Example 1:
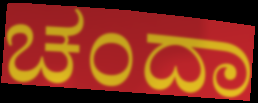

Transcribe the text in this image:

ಚಂದಾ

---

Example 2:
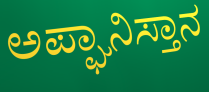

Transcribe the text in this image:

ಅಪ್ಘಾನಿಸ್ತಾನ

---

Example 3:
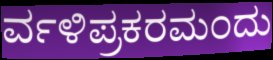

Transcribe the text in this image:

ರ್ವಳಿಪ್ರಕರಮಂದು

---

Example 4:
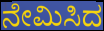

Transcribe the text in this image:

ನೇಮಿಸಿದ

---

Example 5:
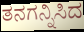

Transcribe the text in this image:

ತನಗನ್ನಿಸಿದ